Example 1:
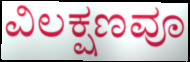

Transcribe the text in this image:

ವಿಲಕ್ಷಣವೂ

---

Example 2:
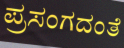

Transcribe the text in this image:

ಪ್ರಸಂಗದಂತೆ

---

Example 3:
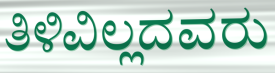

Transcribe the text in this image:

ತಿಳಿವಿಲ್ಲದವರು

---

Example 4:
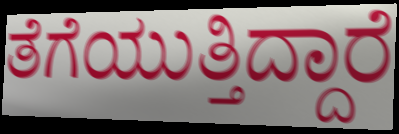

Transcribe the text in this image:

ತೆಗೆಯುತ್ತಿದ್ದಾರೆ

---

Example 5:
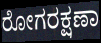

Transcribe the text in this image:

ರೋಗರಕ್ಷಣಾ